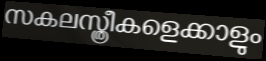
സകലസ്ത്രീകളെക്കാളും